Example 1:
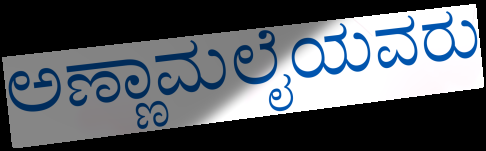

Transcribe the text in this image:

ಅಣ್ಣಾಮಲೈಯವರು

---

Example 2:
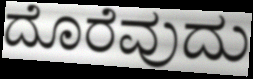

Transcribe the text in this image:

ದೊರೆವುದು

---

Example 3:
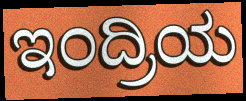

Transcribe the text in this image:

ಇಂದ್ರಿಯ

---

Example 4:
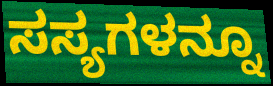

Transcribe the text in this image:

ಸಸ್ಯಗಳನ್ನೂ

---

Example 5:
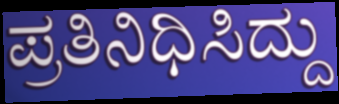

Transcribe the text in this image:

ಪ್ರತಿನಿಧಿಸಿದ್ದು